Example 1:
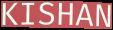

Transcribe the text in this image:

KISHAN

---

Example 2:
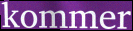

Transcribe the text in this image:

kommer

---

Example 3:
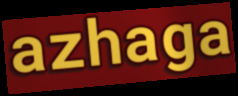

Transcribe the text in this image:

azhaga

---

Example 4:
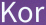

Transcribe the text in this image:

Kor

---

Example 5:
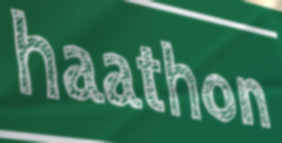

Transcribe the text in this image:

haathon